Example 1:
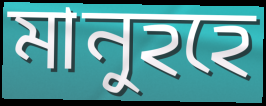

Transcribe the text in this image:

মানুহহে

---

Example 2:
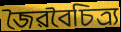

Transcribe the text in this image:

জৈৱবৈচিত্ৰ্য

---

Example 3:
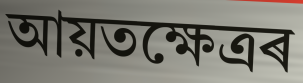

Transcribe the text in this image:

আয়তক্ষেত্ৰৰ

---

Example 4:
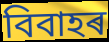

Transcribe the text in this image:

বিবাহৰ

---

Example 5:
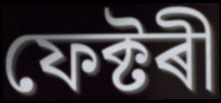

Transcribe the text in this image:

ফেক্টৰী